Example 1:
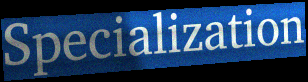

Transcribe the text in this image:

Specialization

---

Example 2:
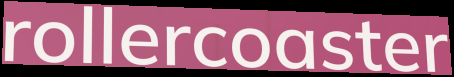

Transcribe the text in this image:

rollercoaster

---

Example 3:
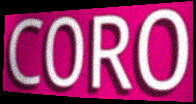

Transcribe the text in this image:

CORO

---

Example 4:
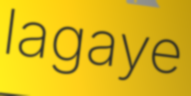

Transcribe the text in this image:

lagaye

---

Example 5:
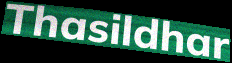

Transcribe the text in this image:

Thasildhar